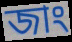
জাং